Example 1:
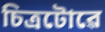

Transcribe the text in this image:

চিত্ৰটোৱে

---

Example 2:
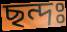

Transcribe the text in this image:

ছন্দঃ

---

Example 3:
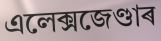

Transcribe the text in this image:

এলেক্সজেণ্ডাৰ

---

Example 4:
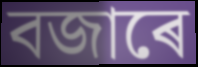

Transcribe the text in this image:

বজাৰে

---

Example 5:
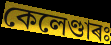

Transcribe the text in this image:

কেলেণ্ডাৰঃ